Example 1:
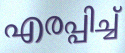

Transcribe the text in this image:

എരപ്പിച്ച്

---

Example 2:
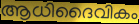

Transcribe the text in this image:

ആധിദൈവികം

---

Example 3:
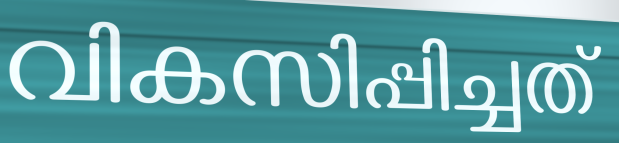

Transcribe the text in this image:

വികസിപ്പിച്ചത്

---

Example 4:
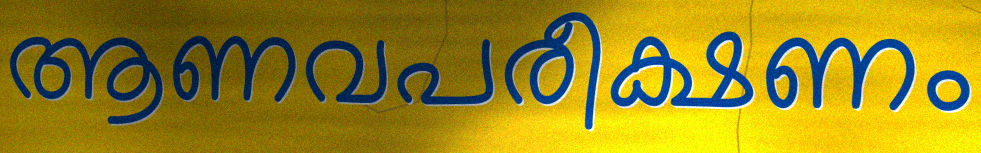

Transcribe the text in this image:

ആണവപരീക്ഷണം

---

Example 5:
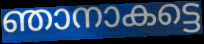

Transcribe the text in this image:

ഞാനാകട്ടെ